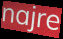
najre